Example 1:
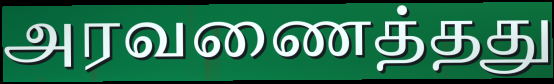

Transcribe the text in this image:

அரவணைத்தது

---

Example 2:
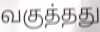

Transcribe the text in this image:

வகுத்தது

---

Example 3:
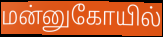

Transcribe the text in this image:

மன்னுகோயில்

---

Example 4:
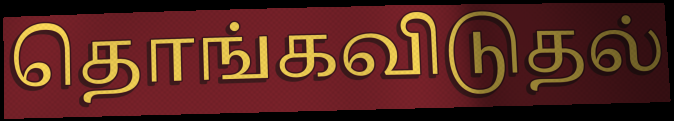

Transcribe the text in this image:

தொங்கவிடுதல்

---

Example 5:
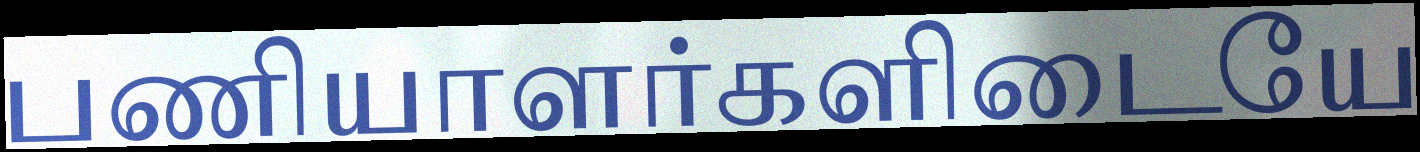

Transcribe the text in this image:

பணியாளர்களிடையே